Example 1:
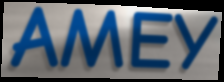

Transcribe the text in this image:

AMEY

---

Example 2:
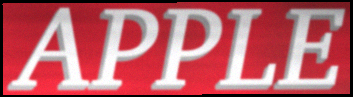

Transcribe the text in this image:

APPLE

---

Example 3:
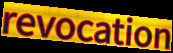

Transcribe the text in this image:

revocation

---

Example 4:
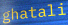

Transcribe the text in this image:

ghatali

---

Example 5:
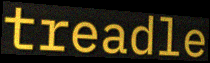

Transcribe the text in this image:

treadle